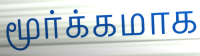
மூர்க்கமாக